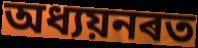
অধ্যয়নৰত